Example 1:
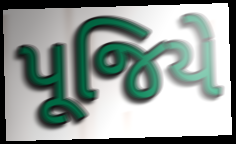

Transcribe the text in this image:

પૂજિયે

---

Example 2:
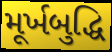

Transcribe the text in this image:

મૂર્ખબુદ્ધિ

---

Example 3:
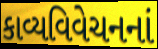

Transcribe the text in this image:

કાવ્યવિવેચનનાં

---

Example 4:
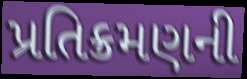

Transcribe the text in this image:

પ્રતિક્રમણની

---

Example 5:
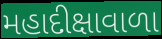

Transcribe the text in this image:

મહાદીક્ષાવાળા